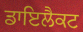
ਡਾਇਲੈਕਟ